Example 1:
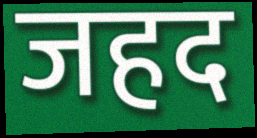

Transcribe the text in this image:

जहद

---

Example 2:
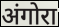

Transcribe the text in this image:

अंगोरा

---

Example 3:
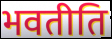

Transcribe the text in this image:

भवतीति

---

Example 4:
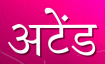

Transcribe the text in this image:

अटेंड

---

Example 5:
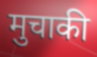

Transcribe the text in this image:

मुचाकी